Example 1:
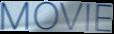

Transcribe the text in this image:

MOVIE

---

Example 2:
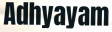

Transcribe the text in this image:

Adhyayam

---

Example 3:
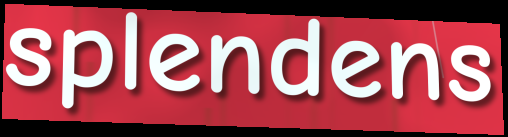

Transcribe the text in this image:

splendens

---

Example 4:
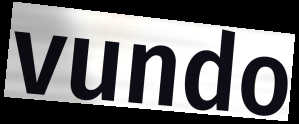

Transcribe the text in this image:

vundo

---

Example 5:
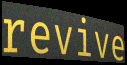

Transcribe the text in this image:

revive